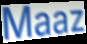
Maaz